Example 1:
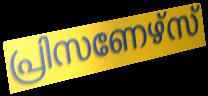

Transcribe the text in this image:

പ്രിസണേഴ്സ്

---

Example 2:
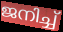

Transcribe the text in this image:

ജനിച്ച്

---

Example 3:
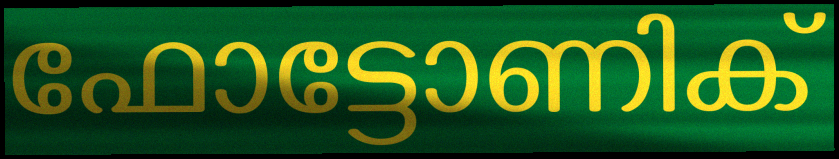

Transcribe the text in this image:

ഫോട്ടോണിക്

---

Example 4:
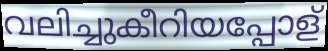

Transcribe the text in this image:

വലിച്ചുകീറിയപ്പോള്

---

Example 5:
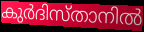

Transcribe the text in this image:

കുർദിസ്താനിൽ